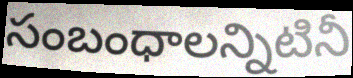
సంబంధాలన్నిటినీ